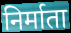
निर्माता